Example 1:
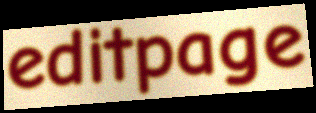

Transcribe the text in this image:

editpage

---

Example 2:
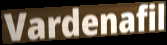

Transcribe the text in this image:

Vardenafil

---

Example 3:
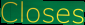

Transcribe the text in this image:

Closes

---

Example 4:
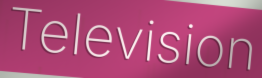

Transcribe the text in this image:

Television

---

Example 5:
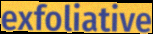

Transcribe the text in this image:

exfoliative